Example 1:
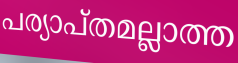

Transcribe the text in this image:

പര്യാപ്തമല്ലാത്ത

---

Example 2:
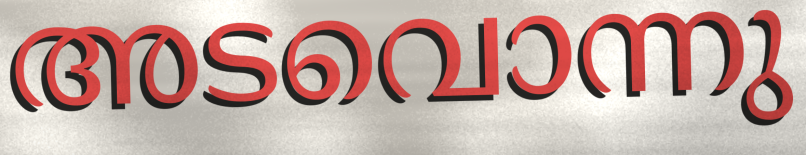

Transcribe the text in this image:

അടവൊന്നു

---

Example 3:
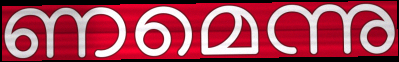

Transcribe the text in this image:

ണമെന്നു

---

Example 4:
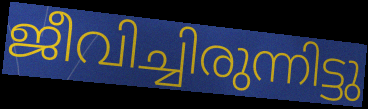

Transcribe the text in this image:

ജീവിച്ചിരുന്നിട്ടു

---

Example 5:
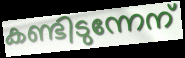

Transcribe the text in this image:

കണ്ടിടുന്നേന്